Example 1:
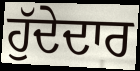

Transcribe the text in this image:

ਹੁੱਦੇਦਾਰ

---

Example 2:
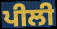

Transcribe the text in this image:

ਪੀਲੀ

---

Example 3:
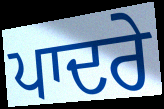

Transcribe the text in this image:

ਪਾਦਰੇ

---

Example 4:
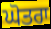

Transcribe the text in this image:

ਘੋਤਰਾ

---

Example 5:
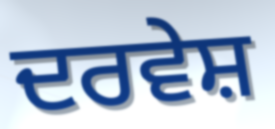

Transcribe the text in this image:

ਦਰਵੇਸ਼